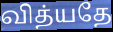
வித்யதே